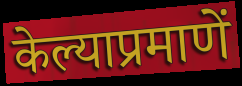
केल्याप्रमाणें